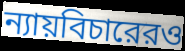
ন্যায়বিচারেরও